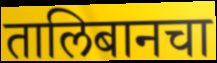
तालिबानचा